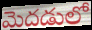
మెదడులో